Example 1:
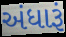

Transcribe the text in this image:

અંધારૂં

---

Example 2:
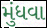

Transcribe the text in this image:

મુંધવા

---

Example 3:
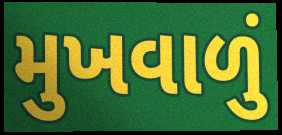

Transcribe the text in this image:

મુખવાળું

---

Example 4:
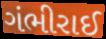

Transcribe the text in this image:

ગંભીરાઈ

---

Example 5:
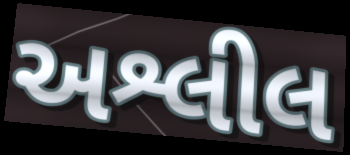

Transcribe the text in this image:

અશ્લીલ